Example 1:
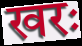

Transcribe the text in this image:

खरः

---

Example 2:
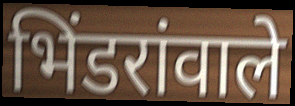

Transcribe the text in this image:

भिंडरांवाले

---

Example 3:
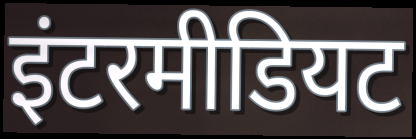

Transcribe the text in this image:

इंटरमीडियट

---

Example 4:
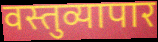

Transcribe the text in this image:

वस्तुव्यापार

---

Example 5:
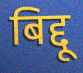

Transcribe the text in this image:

बिद्दू